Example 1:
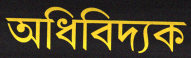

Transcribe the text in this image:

অধিবিদ্যক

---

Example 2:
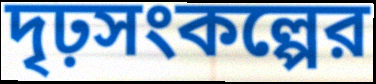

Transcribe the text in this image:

দৃঢ়সংকল্পের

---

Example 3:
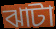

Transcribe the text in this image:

ঝাটা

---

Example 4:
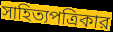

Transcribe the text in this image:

সাহিত্যপত্রিকার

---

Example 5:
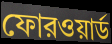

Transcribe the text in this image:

ফোরওয়ার্ড